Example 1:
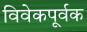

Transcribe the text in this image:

विवेकपूर्वक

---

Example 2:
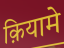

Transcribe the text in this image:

क़ियामे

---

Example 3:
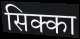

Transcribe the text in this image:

सिक्का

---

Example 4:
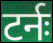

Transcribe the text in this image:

टर्नः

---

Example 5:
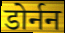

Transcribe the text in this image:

डोर्नन